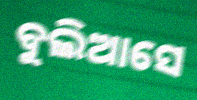
ବୁଲିଆସେ